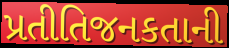
પ્રતીતિજનકતાની